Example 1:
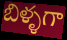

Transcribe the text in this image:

బిళ్ళగా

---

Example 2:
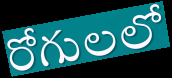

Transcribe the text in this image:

రోగులలో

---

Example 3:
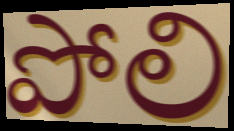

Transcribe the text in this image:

పోలి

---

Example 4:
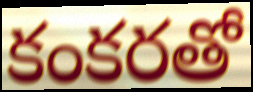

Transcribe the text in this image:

కంకరతో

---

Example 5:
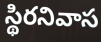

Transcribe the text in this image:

స్థిరనివాస